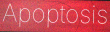
Apoptosis